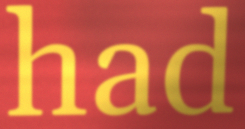
had